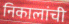
निकालांची